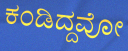
ಕಂಡಿದ್ದವೋ